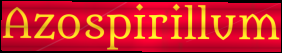
Azospirillum